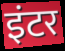
इंटर